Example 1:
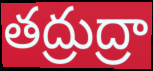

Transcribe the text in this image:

తద్రుద్రా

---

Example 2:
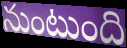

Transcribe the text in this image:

నుంటుంది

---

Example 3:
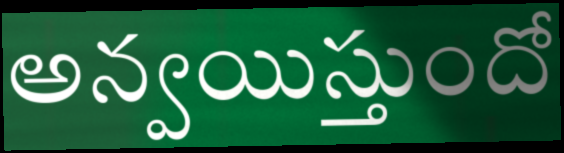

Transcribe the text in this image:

అన్వయిస్తుందో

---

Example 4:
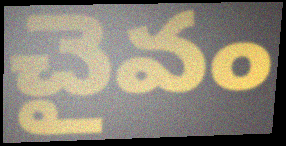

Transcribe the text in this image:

చైవం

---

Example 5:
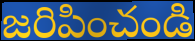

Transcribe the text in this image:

జరిపించండి